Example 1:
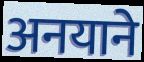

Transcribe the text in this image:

अनयाने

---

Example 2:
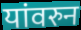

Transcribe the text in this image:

यांवरुन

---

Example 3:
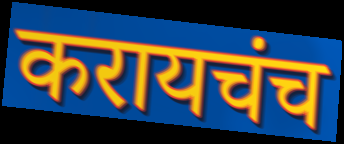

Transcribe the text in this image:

करायचंच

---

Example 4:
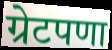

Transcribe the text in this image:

ग्रेटपणा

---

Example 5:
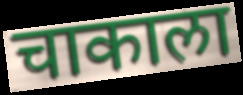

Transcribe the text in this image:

चाकाला